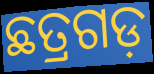
ଛତ୍ରଗଡ଼